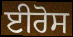
ਈਰੋਸ